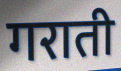
गराती